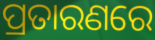
ପ୍ରତାରଣରେ